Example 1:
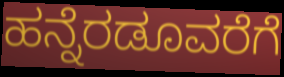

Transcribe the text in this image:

ಹನ್ನೆರಡೂವರೆಗೆ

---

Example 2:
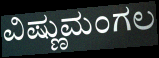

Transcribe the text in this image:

ವಿಷ್ಣುಮಂಗಲ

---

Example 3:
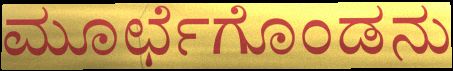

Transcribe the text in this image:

ಮೂರ್ಛೆಗೊಂಡನು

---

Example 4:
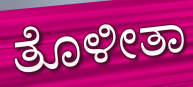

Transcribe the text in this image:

ತೊಳೀತಾ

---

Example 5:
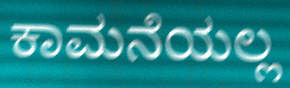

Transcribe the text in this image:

ಕಾಮನೆಯಲ್ಲ